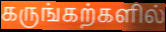
கருங்கற்களில்